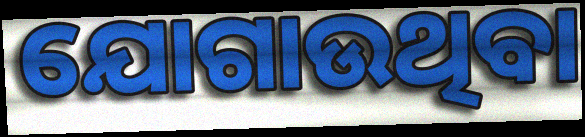
ଯୋଗାଉଥିବା